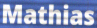
Mathias